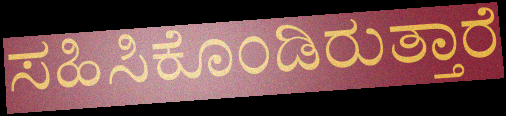
ಸಹಿಸಿಕೊಂಡಿರುತ್ತಾರೆ